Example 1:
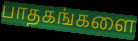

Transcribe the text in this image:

பாதகங்களை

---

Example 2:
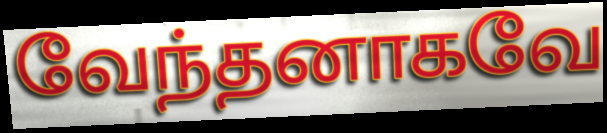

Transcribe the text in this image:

வேந்தனாகவே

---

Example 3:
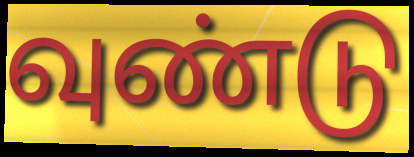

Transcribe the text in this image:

வுண்டு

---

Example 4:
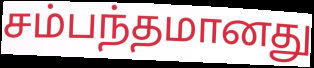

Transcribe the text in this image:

சம்பந்தமானது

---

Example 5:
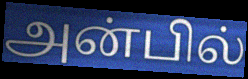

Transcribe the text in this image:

அன்பில்